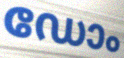
ഡോം